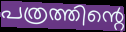
പത്രത്തിന്റെ